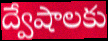
ద్వేషాలకు